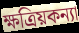
ক্ষত্রিয়কন্যা